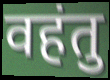
वहंतु